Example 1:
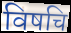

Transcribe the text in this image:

विषचि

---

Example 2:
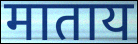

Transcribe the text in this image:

माताय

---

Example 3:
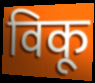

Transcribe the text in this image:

विकू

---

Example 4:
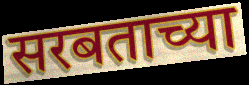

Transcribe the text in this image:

सरबताच्या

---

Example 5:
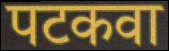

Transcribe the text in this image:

पटकवा